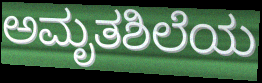
ಅಮೃತಶಿಲೆಯ